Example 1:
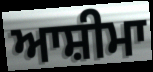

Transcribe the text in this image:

ਆਸ਼ੀਮਾ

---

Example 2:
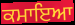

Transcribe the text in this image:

ਕਮਾਇਆ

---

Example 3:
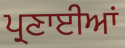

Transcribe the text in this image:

ਪ੍ਰਣਾਈਆਂ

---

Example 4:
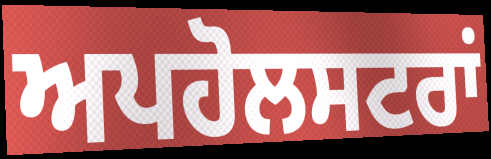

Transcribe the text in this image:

ਅਪਹੋਲਸਟਰਾਂ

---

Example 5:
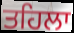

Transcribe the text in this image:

ਤਹਿਲਾ